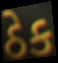
ઠેક